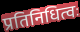
प्रतिनिधित्वः